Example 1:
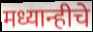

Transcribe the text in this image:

मध्यान्हीचे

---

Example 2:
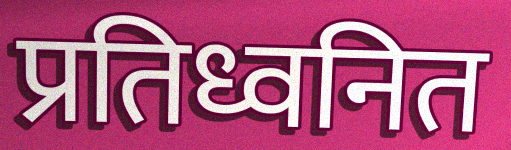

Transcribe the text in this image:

प्रतिध्वनित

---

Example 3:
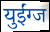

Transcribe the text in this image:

युईंग्ज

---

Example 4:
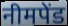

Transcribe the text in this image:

नीमपेंड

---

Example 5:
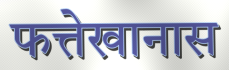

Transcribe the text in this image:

फत्तेखानास